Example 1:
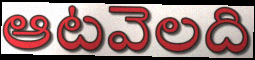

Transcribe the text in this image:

ఆటవెలది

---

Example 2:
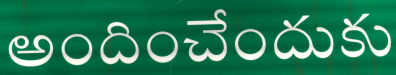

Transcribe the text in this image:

అందించేందుకు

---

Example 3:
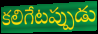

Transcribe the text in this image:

కలిగేటప్పుడు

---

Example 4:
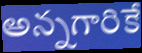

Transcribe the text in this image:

అన్నగారికే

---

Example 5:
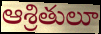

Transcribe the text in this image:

ఆశ్రితులూ